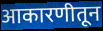
आकारणीतून